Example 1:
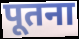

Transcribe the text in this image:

पूतना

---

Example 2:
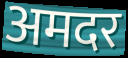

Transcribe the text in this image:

अमदर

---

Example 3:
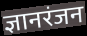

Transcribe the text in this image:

ज्ञानरंजन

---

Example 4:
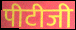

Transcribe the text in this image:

पीटीजी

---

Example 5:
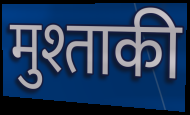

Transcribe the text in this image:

मुश्ताकी